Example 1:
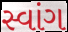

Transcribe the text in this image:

સ્વાંગ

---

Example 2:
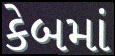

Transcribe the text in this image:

કેબમાં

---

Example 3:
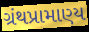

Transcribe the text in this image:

ગ્રંથપ્રામાણ્ય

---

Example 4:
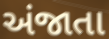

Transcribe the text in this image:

અંજાતા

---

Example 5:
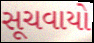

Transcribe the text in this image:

સૂચવાયો